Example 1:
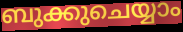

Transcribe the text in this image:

ബുക്കുചെയ്യാം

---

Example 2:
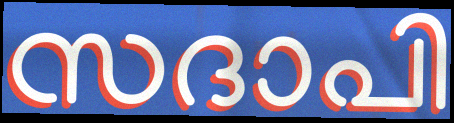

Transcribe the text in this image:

സദാപി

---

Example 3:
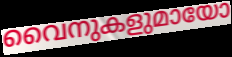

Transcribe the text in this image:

വൈനുകളുമായോ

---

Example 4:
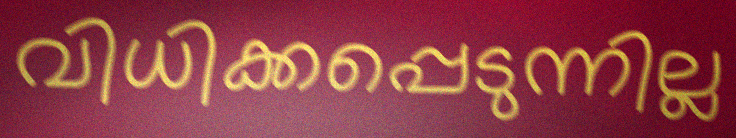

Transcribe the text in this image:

വിധിക്കപ്പെടുന്നില്ല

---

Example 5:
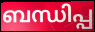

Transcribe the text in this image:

ബന്ധിപ്പ